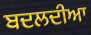
ਬਦਲਦੀਆ